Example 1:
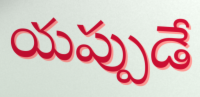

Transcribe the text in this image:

యప్పుడే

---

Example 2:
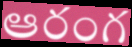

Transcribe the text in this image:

ఆరంగ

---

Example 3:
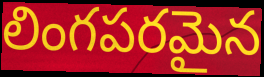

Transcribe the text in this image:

లింగపరమైన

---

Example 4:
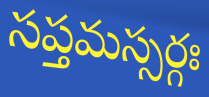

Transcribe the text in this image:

సప్తమస్సర్గః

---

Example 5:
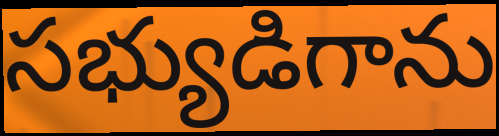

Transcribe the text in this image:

సభ్యుడిగాను